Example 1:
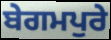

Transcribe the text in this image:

ਬੇਗਮਪੁਰੇ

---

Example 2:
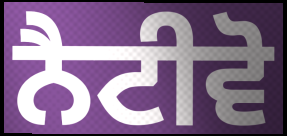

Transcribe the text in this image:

ਨੈਟੀਵੋ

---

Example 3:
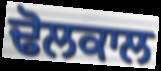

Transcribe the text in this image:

ਢੋਲਕਾਲ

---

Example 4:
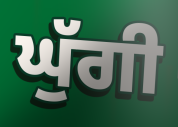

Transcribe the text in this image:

ਘੁੱਗੀ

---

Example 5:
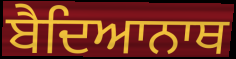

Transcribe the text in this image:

ਬੈਦਿਆਨਾਥ